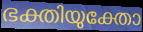
ഭക്തിയുക്തോ